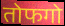
तोफगो